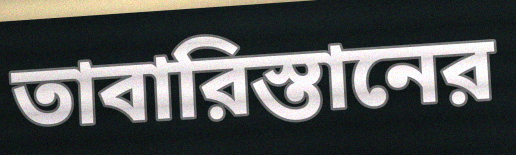
তাবারিস্তানের